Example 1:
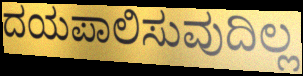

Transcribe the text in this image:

ದಯಪಾಲಿಸುವುದಿಲ್ಲ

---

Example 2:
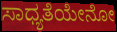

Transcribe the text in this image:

ಸಾಧ್ಯತೆಯೇನೋ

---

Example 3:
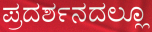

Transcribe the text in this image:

ಪ್ರದರ್ಶನದಲ್ಲೂ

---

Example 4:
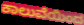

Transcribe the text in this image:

ಕಾಲುವೆಯಿಂದ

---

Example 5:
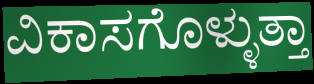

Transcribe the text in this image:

ವಿಕಾಸಗೊಳ್ಳುತ್ತಾ